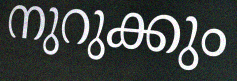
നുറുക്കും